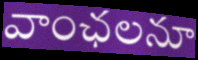
వాంఛలనూ